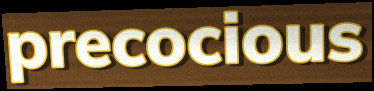
precocious